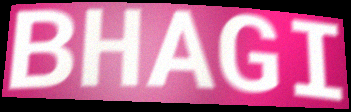
BHAGI